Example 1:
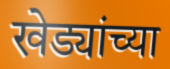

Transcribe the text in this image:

खेड्यांच्या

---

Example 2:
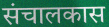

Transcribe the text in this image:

संचालकास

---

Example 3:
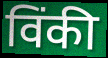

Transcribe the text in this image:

विंकी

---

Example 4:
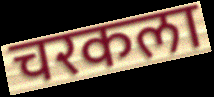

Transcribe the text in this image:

चरकला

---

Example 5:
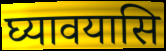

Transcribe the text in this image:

घ्यावयासि